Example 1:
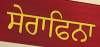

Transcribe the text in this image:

ਸੇਰਾਫਿਨਾ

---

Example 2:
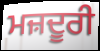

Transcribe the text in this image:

ਮਜ਼ਦੂਰੀ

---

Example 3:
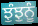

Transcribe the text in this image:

ਝੁੰਝੁਨੂੰ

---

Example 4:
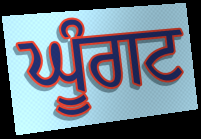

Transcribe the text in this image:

ਘੂੰਗਟ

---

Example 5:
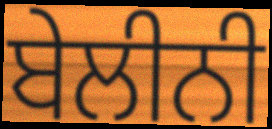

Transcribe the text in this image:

ਬੇਲੀਨੀ